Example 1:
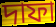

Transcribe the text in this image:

দাফা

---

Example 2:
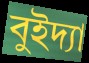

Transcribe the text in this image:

বুইদ্যা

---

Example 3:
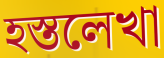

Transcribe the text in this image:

হস্তলেখা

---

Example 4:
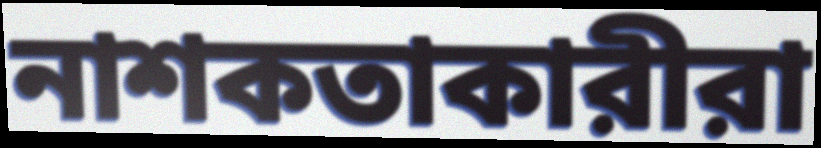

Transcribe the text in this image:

নাশকতাকারীরা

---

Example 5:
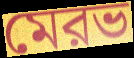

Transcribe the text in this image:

মেরভ